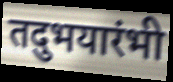
तदुभयारंभी